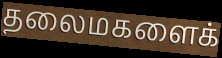
தலைமகளைக்